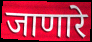
जाणारे